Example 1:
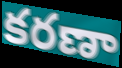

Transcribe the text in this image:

కరణా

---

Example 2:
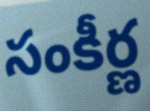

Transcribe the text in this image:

సంకీర్ణ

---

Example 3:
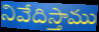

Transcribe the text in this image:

నివేదిస్తాము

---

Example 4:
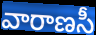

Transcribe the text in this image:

వారాణసీ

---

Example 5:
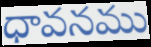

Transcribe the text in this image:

ధావనము